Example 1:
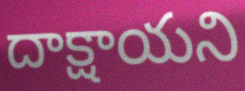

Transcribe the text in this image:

దాక్షాయని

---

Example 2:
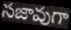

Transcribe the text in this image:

సజావుగా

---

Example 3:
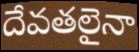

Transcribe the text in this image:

దేవతలైనా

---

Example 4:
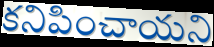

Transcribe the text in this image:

కనిపించాయని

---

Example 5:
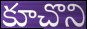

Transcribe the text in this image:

కూచొని